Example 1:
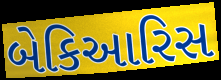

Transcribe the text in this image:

બેકિઆરિસ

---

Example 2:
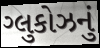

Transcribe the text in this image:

ગ્લુકોઝનું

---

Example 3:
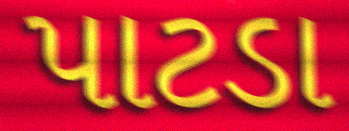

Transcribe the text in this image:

પાટડા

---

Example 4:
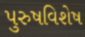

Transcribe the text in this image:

પુરુષવિશેષ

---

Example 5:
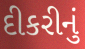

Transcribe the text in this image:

દીકરીનું